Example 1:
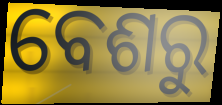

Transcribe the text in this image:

ବେଶରୁ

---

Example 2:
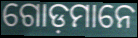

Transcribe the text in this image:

ଗୋଡ଼ମାନେ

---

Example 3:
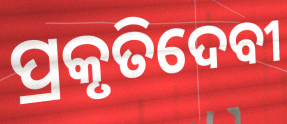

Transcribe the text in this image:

ପ୍ରକୃତିଦେବୀ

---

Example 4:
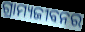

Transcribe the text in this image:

ଗ୍ରାମ୍ୟଜୀବନର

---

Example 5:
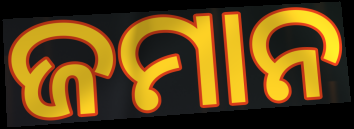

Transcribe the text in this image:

ଜମାନ